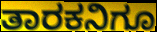
ತಾರಕನಿಗೂ